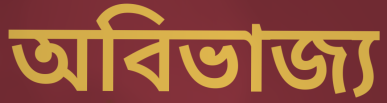
অবিভাজ্য